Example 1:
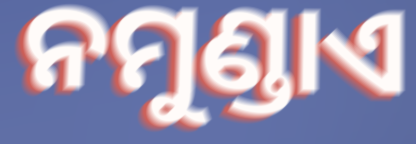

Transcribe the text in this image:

ନମୁଣ୍ଡାଏ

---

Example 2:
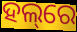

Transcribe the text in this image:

ହଲ୍‌ରେ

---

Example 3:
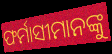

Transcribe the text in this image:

ଫର୍ମାସୀମାନଙ୍କୁ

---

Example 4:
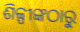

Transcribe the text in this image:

ଶିଳ୍ପୀଙ୍କଠାରୁ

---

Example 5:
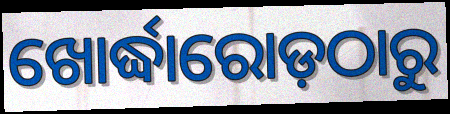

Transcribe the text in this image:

ଖୋର୍ଦ୍ଧାରୋଡ଼ଠାରୁ